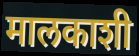
मालकाशी